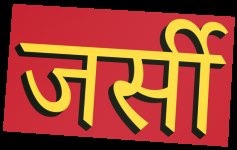
जर्सी